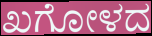
ಖಗೋಳದ